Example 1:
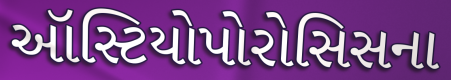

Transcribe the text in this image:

ઑસ્ટિયોપોરોસિસના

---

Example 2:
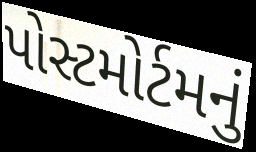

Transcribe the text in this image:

પોસ્ટમોર્ટમનું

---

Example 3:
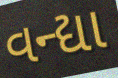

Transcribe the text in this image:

વન્દ્યા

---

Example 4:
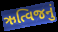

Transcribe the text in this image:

ઋત્વિજનું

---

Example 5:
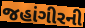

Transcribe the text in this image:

જહાંગીરની